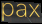
pax